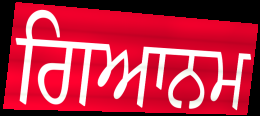
ਗਿਆਨਮ